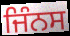
ਜਿੰਨਸ